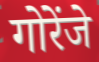
गोरेंजे